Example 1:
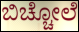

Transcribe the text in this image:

ಬಿಚ್ಚೋಲೆ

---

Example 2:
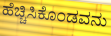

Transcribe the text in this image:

ಹೆಚ್ಚಿಸಿಕೊಂಡವನು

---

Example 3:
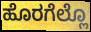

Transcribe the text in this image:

ಹೊರಗೆಲ್ಲೊ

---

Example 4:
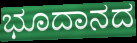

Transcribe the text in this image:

ಭೂದಾನದ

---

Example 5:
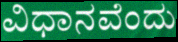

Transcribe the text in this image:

ವಿಧಾನವೆಂದು